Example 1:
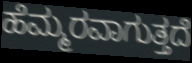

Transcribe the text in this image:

ಹೆಮ್ಮರವಾಗುತ್ತದೆ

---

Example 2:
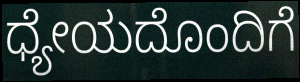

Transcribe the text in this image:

ಧ್ಯೇಯದೊಂದಿಗೆ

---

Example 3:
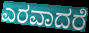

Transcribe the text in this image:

ಎರವಾದರೆ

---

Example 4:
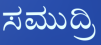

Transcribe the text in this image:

ಸಮುದ್ರಿ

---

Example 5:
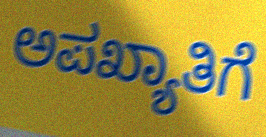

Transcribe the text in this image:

ಅಪಖ್ಯಾತಿಗೆ